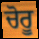
ਚੋਰੂ